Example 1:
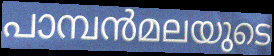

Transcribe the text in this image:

പാമ്പൻമലയുടെ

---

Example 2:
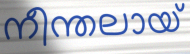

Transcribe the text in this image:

നീന്തലായ്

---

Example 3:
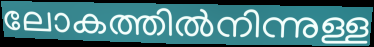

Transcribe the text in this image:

ലോകത്തിൽനിന്നുള്ള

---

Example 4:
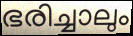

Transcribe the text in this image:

ഭരിച്ചാലും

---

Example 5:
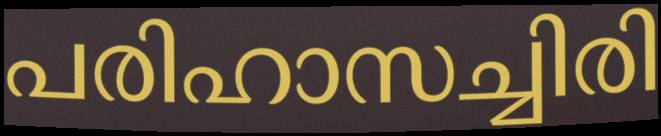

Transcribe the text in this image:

പരിഹാസച്ചിരി